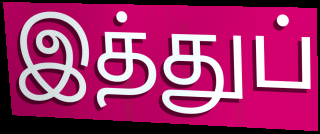
இத்துப்